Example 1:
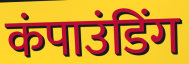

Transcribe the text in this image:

कंपाउंडिंग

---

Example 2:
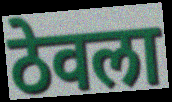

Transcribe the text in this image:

ठेवला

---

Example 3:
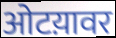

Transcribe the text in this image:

ओटय़ावर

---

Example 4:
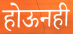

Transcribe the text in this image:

होऊनही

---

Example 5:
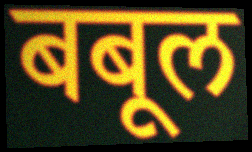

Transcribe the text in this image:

बबूल